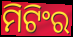
ମିଟିଂର